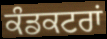
ਕੰਡਕਟਰਾਂ